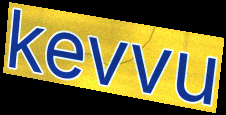
kevvu